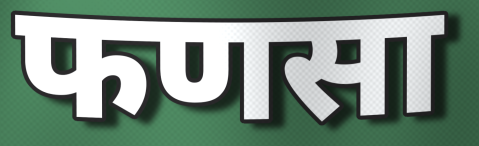
फणसा